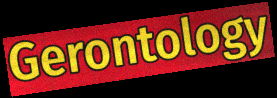
Gerontology